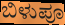
ಬಿಳುಪೂ